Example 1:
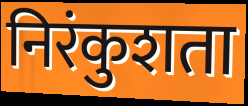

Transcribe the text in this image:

निरंकुशता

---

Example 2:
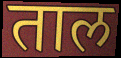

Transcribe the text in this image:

ताल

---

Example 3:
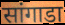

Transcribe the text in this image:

सांगाडा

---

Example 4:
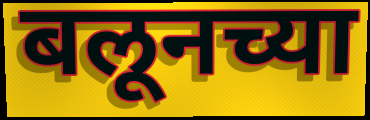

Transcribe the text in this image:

बलूनच्या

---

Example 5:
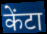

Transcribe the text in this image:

केंटा